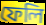
ফেলি